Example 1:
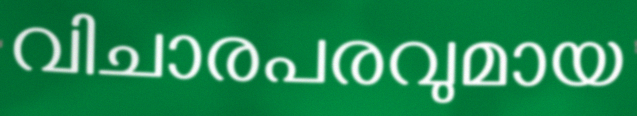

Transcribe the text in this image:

വിചാരപരവുമായ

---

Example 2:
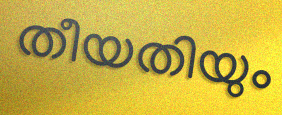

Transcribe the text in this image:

തീയതിയും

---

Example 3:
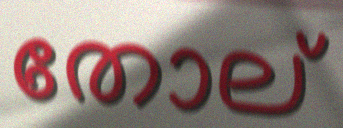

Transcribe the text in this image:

തോല്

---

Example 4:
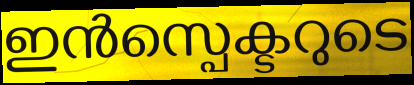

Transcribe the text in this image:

ഇൻസ്പെക്ടറുടെ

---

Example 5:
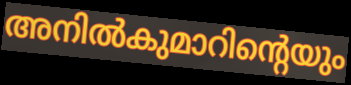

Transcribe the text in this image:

അനിൽകുമാറിന്റെയും